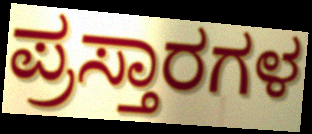
ಪ್ರಸ್ತಾರಗಳ